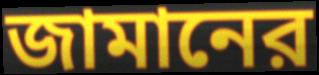
জামানের